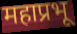
महाप्रभू